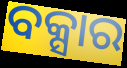
ବକ୍ସାର